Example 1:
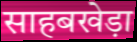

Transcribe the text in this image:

साहबखेड़ा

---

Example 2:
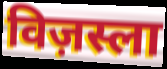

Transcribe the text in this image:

विज़स्ला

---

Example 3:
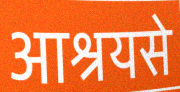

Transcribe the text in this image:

आश्रयसे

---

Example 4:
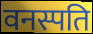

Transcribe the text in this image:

वनस्पति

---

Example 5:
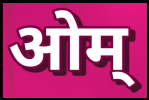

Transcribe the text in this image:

ओम्